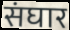
संघार